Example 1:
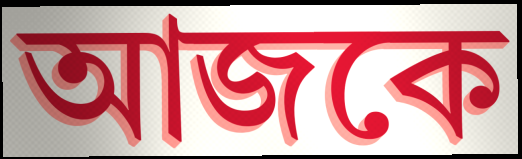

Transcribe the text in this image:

আজকে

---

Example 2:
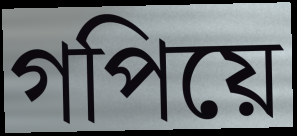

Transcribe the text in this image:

গপিয়ে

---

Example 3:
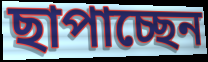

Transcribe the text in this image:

ছাপাচ্ছেন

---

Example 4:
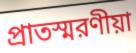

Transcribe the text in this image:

প্রাতস্মরণীয়া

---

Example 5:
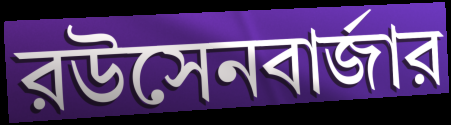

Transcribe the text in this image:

রউসেনবার্জার